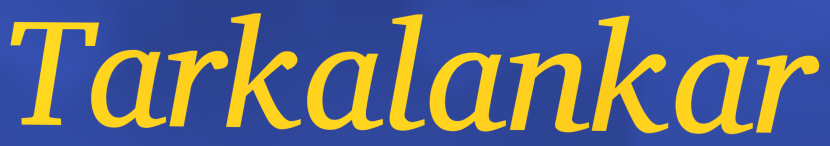
Tarkalankar